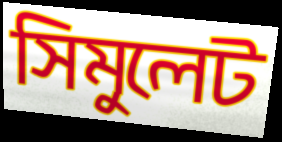
সিমুলেট